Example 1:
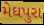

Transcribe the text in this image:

મેઘપુરા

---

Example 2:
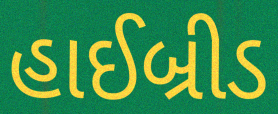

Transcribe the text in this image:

હાઈબ્રીડ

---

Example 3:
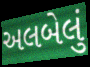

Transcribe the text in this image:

અલબેલું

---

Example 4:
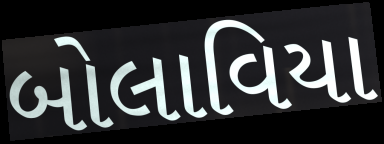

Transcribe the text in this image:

બોલાવિયા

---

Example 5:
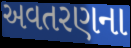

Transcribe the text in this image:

અવતરણના